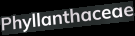
Phyllanthaceae